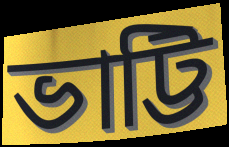
ভাট্টি